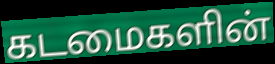
கடமைகளின்